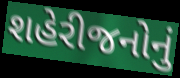
શહેરીજનોનું